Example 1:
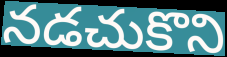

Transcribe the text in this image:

నడచుకొని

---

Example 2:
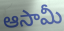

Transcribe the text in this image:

ఆసామీ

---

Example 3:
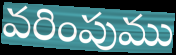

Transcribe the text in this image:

వరింపుము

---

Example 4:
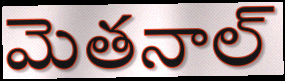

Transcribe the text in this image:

మెతనాల్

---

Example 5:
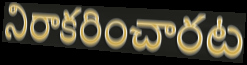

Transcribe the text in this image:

నిరాకరించారట